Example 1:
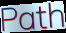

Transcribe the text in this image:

Path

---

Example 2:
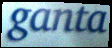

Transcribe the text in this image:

ganta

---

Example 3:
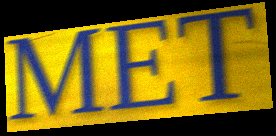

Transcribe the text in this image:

MET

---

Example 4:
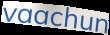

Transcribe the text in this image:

vaachun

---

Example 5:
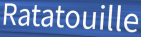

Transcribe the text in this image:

Ratatouille